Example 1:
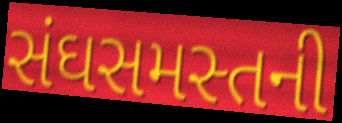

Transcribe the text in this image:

સંઘસમસ્તની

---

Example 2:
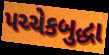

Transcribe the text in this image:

પચ્ચેકબુદ્ધા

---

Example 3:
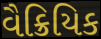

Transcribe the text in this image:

વૈક્રિયિક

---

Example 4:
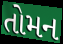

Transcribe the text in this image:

તોમન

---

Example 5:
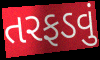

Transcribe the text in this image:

તરફડવું